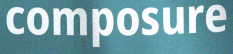
composure